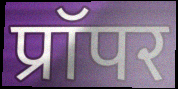
प्रॉपर